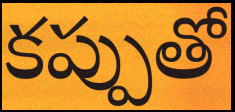
కప్పుతో